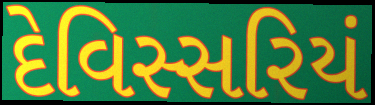
દેવિસ્સરિયં